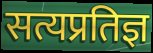
सत्यप्रतिज्ञ